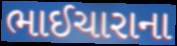
ભાઈચારાના